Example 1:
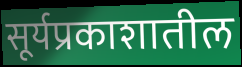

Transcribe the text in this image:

सूर्यप्रकाशातील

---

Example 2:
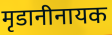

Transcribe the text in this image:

मृडानीनायक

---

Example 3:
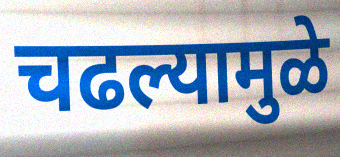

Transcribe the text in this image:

चढल्यामुळे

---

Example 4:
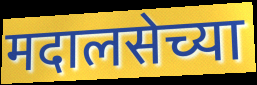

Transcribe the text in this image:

मदालसेच्या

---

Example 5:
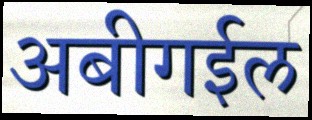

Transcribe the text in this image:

अबीगईल